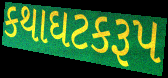
કથાઘટકરૂપ